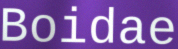
Boidae